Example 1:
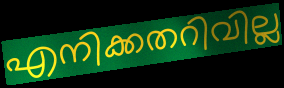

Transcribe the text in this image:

എനിക്കതറിവില്ല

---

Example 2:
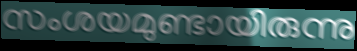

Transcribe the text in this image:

സംശയമുണ്ടായിരുന്നു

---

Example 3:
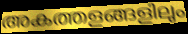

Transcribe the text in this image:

അകത്തളങ്ങളിലും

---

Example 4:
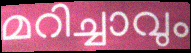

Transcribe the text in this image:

മറിച്ചാവും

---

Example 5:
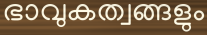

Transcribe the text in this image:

ഭാവുകത്വങ്ങളും